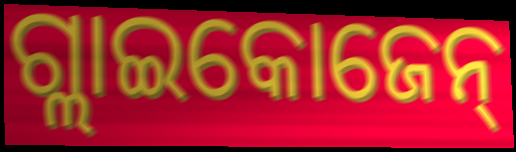
ଗ୍ଲାଇକୋଜେନ୍